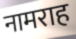
नामराह